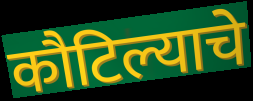
कौटिल्याचे